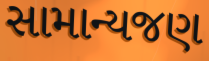
સામાન્યજણ